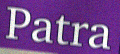
Patra